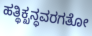
ಹತ್ಥಿಕ್ಖನ್ಧವರಗತೋ